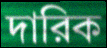
দারিক